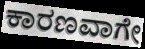
ಕಾರಣವಾಗೇ